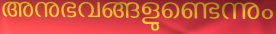
അനുഭവങ്ങളുണ്ടെന്നും